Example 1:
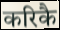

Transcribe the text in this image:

करिकै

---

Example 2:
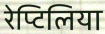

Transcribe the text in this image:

रेप्टिलिया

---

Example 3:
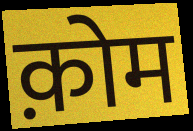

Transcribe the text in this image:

क़ोम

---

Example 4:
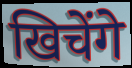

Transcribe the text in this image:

खिचेंगे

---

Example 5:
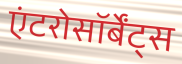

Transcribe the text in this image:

एंटरोसॉर्बेंट्स